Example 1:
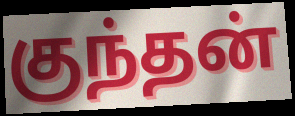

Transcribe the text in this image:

குந்தன்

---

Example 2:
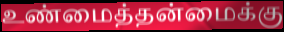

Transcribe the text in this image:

உண்மைத்தன்மைக்கு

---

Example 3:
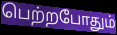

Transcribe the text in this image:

பெற்றபோதும்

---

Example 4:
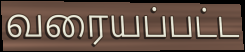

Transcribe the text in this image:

வரையப்பட்ட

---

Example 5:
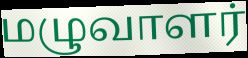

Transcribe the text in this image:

மழுவாளர்